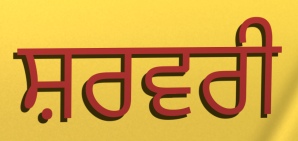
ਸ਼ਰਵਰੀ